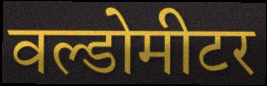
वल्डोमीटर